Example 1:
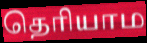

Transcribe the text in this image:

தெரியாம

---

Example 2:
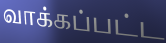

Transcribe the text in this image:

வாக்கப்பட்ட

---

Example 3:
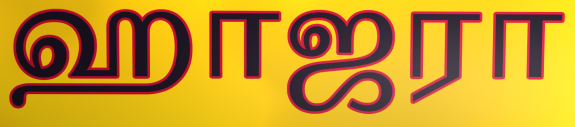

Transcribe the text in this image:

ஹாஜரா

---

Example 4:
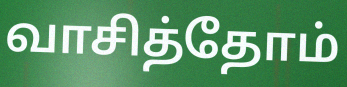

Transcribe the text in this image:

வாசித்தோம்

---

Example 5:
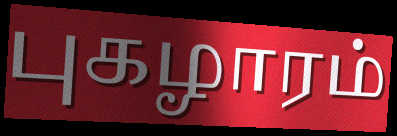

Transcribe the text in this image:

புகழாரம்